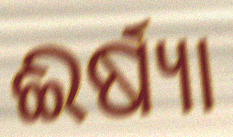
ଈର୍ଷ୍ୟା